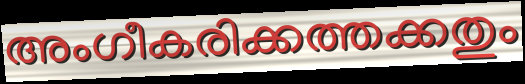
അംഗീകരിക്കത്തക്കതും